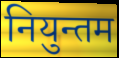
नियुन्तम